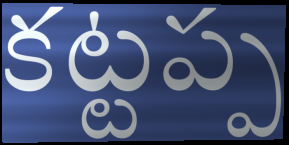
కట్టప్ప